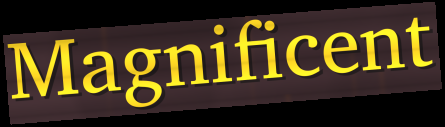
Magnificent